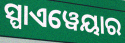
ସ୍ପାଏୱେୟାର